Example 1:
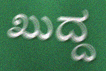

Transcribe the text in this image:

ಖುದ್ದ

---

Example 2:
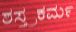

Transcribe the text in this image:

ಶಸ್ತ್ರಕರ್ಮ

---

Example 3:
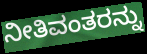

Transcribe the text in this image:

ನೀತಿವಂತರನ್ನು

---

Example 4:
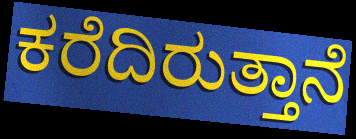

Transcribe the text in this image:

ಕರೆದಿರುತ್ತಾನೆ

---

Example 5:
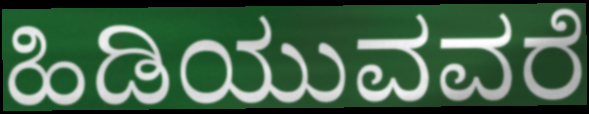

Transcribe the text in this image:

ಹಿಡಿಯುವವರೆ